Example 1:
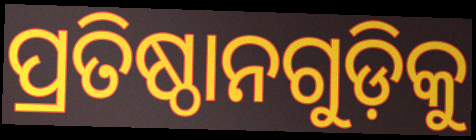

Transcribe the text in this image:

ପ୍ରତିଷ୍ଠାନଗୁଡ଼ିକୁ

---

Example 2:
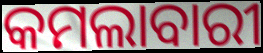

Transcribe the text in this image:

କମଲାବାରୀ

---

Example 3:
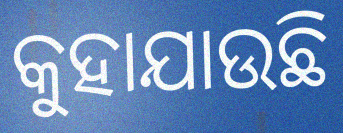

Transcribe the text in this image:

କୁହାଯାଉଛି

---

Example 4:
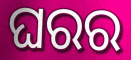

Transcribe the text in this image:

ଘରର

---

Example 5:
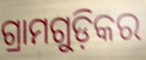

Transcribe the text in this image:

ଗ୍ରାମଗୁଡ଼ିକର